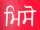
ਮਿਸੋ